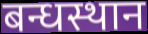
बन्धस्थान